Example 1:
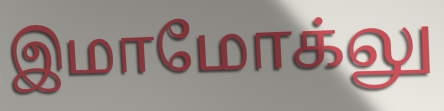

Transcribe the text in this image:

இமாமோக்லு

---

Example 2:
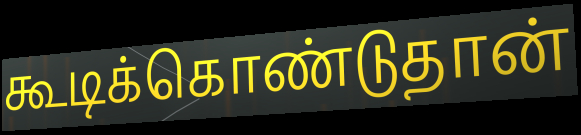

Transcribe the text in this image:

கூடிக்கொண்டுதான்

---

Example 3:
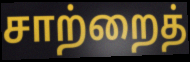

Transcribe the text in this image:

சாற்றைத்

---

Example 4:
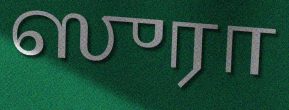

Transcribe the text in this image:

ஸுரா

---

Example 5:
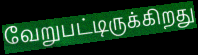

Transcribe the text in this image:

வேறுபட்டிருக்கிறது